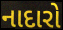
નાદારો